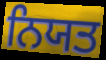
ਨਿਯਤ